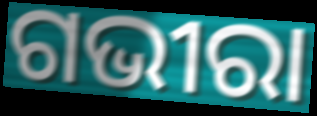
ଗଭୀରା